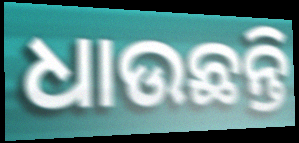
ଧାଉଛନ୍ତି